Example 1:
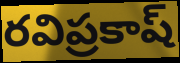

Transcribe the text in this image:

రవిప్రకాష్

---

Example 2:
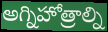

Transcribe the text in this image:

అగ్నిహోత్రాల్ని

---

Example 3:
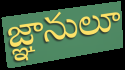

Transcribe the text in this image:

జ్ఞానులూ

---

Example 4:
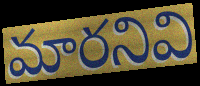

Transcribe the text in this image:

మారనివి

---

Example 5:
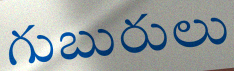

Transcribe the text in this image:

గుబురులు